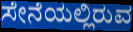
ಸೇನೆಯಲ್ಲಿರುವ